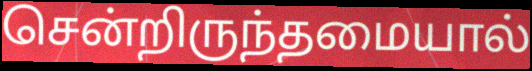
சென்றிருந்தமையால்